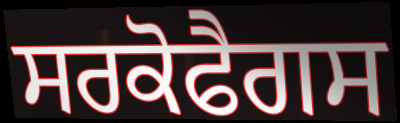
ਸਰਕੋਫੈਗਸ